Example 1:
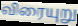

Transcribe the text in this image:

விரையுறு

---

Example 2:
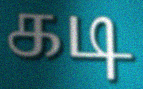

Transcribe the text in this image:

கடி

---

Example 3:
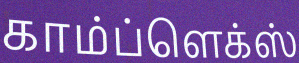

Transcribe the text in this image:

காம்ப்ளெக்ஸ்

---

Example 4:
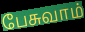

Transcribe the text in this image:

பேசுவாம்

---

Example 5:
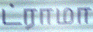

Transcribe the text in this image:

ட்ராமா